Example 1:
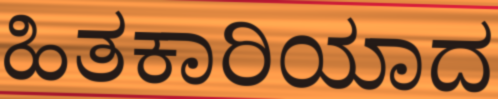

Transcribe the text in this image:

ಹಿತಕಾರಿಯಾದ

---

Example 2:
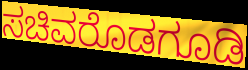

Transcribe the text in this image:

ಸಚಿವರೊಡಗೂಡಿ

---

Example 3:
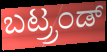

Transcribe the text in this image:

ಬಟ್ರ್ರಂಡ್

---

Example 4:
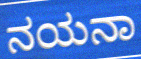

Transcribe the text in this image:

ನಯನಾ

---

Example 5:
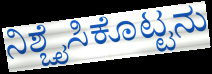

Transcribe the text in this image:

ನಿಶ್ಚೈಸಿಕೊಟ್ಟನು